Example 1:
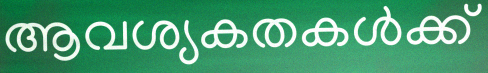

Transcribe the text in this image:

ആവശ്യകതകൾക്ക്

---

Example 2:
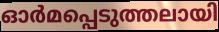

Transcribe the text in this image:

ഓർമപ്പെടുത്തലായി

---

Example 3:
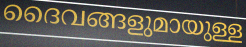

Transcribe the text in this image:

ദൈവങ്ങളുമായുള്ള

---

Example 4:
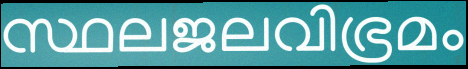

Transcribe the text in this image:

സ്ഥലജലവിഭ്രമം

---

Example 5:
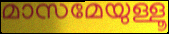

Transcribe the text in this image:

മാസമേയുള്ളൂ